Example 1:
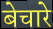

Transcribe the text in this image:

बेचारे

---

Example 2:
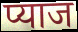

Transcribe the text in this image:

प्याज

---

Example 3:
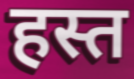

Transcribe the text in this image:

हस्त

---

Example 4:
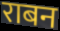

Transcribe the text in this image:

राबन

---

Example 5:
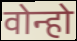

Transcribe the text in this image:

वोन्हो